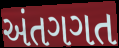
અંતગગત